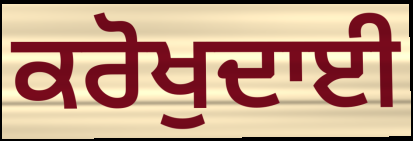
ਕਰੋਖੁਦਾਈ